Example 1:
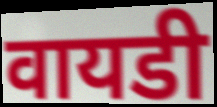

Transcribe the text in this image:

वायडी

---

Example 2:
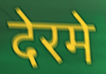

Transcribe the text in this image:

देरमे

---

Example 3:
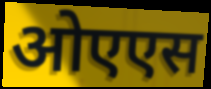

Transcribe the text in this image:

ओएएस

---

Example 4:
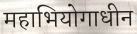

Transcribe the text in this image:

महाभियोगाधीन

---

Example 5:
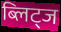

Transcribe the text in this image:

ब्लिट्ज